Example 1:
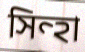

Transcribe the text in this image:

সিন্হা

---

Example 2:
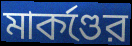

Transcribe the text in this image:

মার্কণ্ডের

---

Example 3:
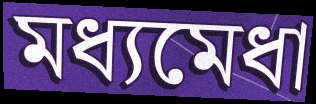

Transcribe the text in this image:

মধ্যমেধা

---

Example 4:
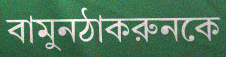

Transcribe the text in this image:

বামুনঠাকরুনকে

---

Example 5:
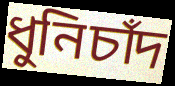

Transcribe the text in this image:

ধুনিচাঁদ